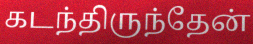
கடந்திருந்தேன்